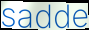
sadde